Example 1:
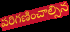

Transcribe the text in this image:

పరిగణించాల్సిన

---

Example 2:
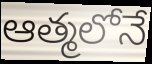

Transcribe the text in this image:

ఆత్మలోనే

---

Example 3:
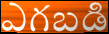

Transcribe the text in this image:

ఎగబడి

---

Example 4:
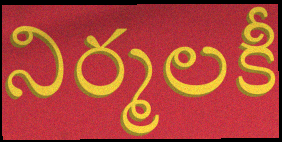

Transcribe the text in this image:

నిర్మలకీ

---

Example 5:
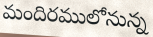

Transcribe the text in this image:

మందిరములోనున్న